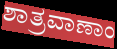
ಶಾತ್ರವಾಣಾಂ